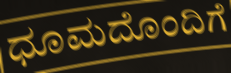
ಧೂಮದೊಂದಿಗೆ